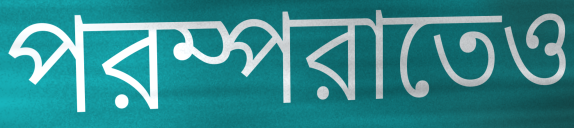
পরম্পরাতেও